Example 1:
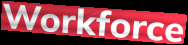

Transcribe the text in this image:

Workforce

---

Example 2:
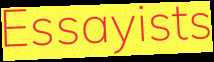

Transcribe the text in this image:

Essayists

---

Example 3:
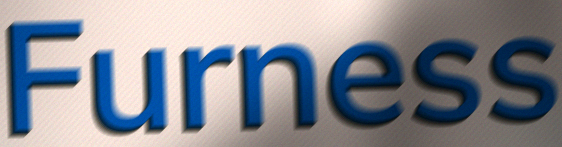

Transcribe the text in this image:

Furness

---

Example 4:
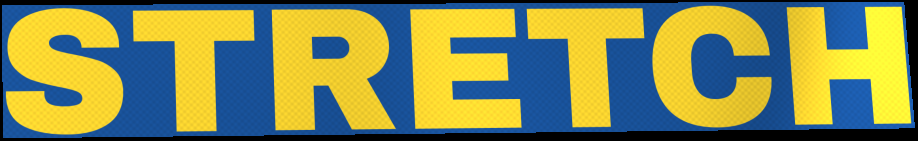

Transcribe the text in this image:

STRETCH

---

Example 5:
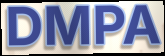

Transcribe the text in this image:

DMPA